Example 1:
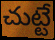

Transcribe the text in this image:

చుట్టే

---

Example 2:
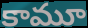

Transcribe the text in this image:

కామూ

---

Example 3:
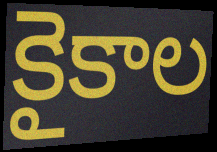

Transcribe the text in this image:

కైకాల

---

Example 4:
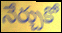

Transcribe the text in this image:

నేర్చుకో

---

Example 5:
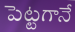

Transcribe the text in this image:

పెట్టగానే